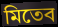
মিতেব